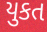
યુકત